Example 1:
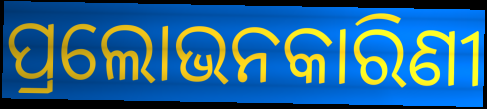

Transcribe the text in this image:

ପ୍ରଲୋଭନକାରିଣୀ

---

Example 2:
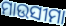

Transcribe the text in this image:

ମାଉସୀମା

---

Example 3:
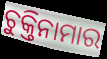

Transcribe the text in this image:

ଚୁକ୍ତିନାମାର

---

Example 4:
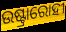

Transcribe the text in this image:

ଉଷ୍ଟ୍ରାରୋହୀ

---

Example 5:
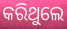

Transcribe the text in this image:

କରିଥୁଲେ